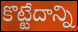
కొట్టేదాన్ని